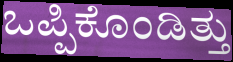
ಒಪ್ಪಿಕೊಂಡಿತ್ತು